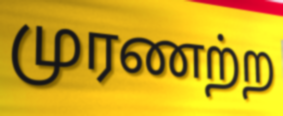
முரணற்ற